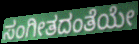
ಸಂಗೀತದಂತೆಯೇ